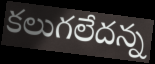
కలుగలేదన్న